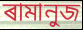
ৰামানুজ